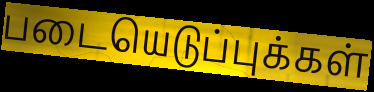
படையெடுப்புக்கள்